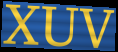
XUV